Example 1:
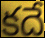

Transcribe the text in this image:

కదే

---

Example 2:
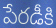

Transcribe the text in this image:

పేరడీకి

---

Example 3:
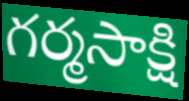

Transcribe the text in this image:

గర్మసాక్షి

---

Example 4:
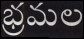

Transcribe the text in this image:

భ్రమల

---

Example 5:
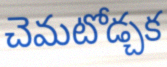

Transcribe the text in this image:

చెమటోడ్చక